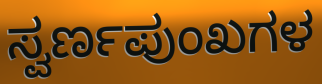
ಸ್ವರ್ಣಪುಂಖಗಳ